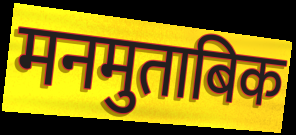
मनमुताबिक